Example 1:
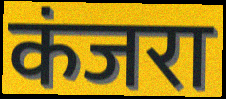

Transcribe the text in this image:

कंजरा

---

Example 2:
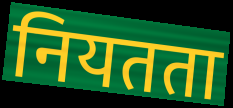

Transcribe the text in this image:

नियतता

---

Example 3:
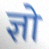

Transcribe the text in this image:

ज्ञो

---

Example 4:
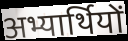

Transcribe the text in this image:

अभ्‍यार्थियों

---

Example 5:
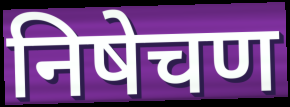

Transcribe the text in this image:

निषेचण